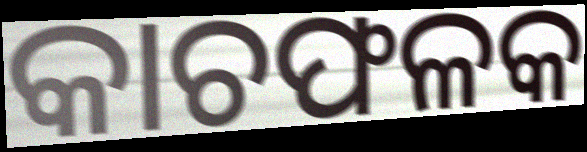
କାଚଫଳକ